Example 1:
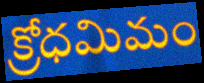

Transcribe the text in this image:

క్రోధమిమం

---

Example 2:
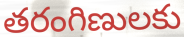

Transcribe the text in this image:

తరంగిణులకు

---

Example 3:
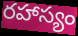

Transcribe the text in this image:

రహాస్యం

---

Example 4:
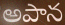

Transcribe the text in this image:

అపాన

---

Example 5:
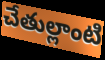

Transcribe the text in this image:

చేతుల్లాంటి